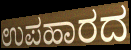
ಉಪಹಾರದ